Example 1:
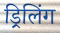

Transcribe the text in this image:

ड्रिलिंग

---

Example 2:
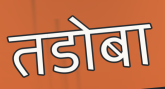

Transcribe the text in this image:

तडोबा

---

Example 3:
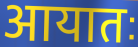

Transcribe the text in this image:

आयातः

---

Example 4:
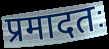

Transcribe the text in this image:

प्रमादतः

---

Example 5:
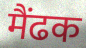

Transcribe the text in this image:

मैंढक